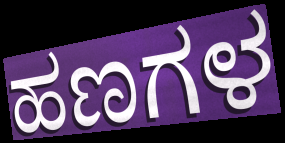
ಹಣಗಳ